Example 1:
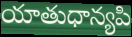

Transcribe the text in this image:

యాతుధాన్యపి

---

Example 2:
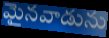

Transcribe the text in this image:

మైనవాడును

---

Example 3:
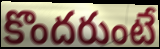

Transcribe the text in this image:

కొందరుంటే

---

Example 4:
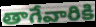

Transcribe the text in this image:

తాగేవారికి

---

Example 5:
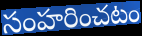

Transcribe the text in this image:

సంహరించటం